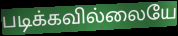
படிக்கவில்லையே